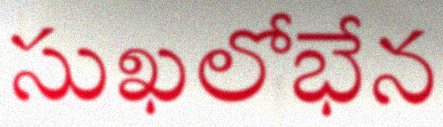
సుఖలోభేన